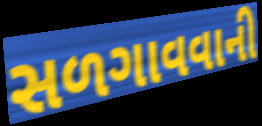
સળગાવવાની